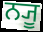
ਨ੍ਯੂ